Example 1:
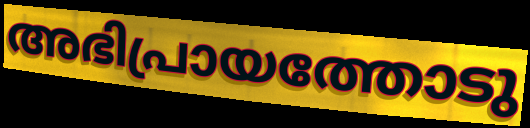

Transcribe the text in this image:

അഭിപ്രായത്തോടു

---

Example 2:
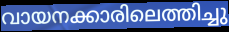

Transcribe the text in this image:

വായനക്കാരിലെത്തിച്ചു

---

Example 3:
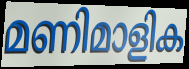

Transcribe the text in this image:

മണിമാളിക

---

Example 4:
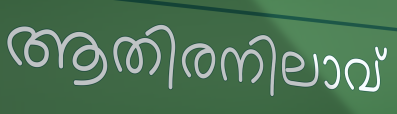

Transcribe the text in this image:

ആതിരനിലാവ്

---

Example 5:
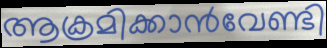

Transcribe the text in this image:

ആക്രമിക്കാൻവേണ്ടി